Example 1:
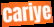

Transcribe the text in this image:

cariye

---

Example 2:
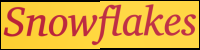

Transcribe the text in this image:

Snowflakes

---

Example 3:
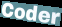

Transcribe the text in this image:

Coder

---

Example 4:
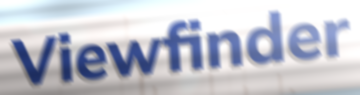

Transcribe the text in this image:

Viewfinder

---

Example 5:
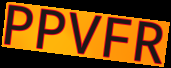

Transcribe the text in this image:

PPVFR